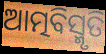
ଆତ୍ମବିସ୍ମୃତି